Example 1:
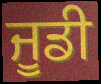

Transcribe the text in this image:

ਜੂਡੀ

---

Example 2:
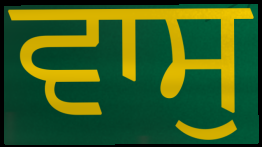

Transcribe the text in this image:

ਵਾਸੁ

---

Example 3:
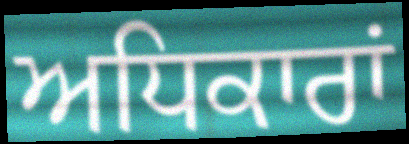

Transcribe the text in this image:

ਅਧਿਕਾਰਾਂ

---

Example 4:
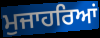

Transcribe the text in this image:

ਮੁਜਾਹਰਿਆਂ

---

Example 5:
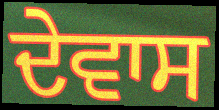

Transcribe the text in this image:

ਦੇਵਾਸ